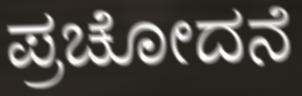
ಪ್ರಚೋದನೆ